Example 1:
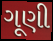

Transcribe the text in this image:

ગૂણી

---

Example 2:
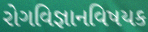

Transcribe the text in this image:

રોગવિજ્ઞાનવિષયક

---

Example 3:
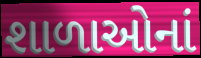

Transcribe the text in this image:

શાળાઓનાં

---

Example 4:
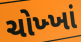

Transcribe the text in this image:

ચોખ્ખાં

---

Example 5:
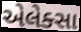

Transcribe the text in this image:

એલેક્સા